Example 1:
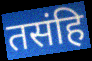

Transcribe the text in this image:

तसंहि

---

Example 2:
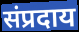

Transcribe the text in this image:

संप्रदाय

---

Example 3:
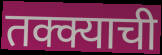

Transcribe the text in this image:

तक्क्याची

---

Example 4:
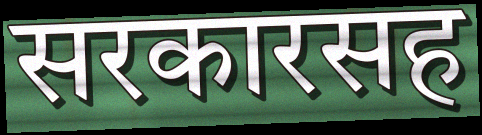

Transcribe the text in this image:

सरकारसह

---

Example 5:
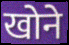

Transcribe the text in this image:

खोने